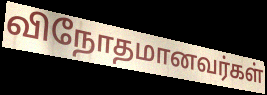
விநோதமானவர்கள்